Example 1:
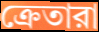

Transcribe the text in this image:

ক্রেতারা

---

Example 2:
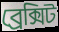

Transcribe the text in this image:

ব্রেক্সিট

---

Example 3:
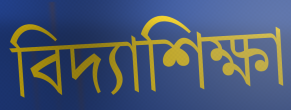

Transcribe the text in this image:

বিদ্যাশিক্ষা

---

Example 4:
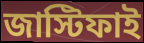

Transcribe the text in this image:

জাস্টিফাই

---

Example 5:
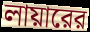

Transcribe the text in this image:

লায়ারের